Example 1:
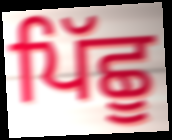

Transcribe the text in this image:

ਪਿੱਛੂ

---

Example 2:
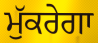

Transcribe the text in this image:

ਮੁੱਕਰੇਗਾ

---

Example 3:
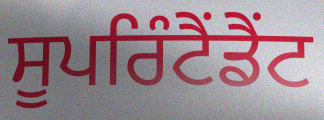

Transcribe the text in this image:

ਸੂਪਰਿੰਟੈਂਡੈਂਟ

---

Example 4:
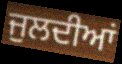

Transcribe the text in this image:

ਜੁਲਦੀਆਂ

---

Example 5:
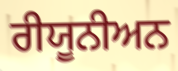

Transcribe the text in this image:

ਰੀਯੂਨੀਅਨ